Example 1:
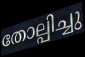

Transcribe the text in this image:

തോല്പിച്ചു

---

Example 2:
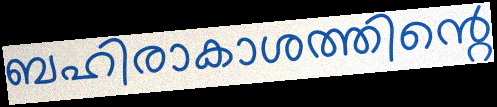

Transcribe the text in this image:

ബഹിരാകാശത്തിന്റെ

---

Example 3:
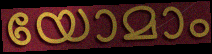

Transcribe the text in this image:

യോമാം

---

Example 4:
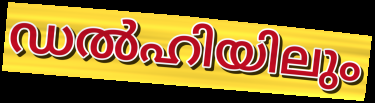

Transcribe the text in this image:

ഡൽഹിയിലും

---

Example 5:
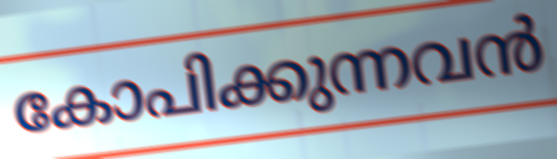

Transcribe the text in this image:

കോപിക്കുന്നവൻ